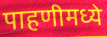
पाहणीमध्ये